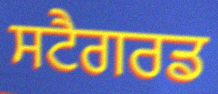
ਸਟੈਗਰਡ